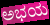
ಅಭಯ